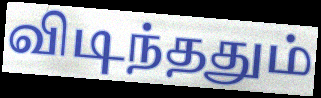
விடிந்ததும்